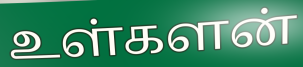
உள்களன்